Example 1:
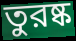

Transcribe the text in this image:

তুরষ্ক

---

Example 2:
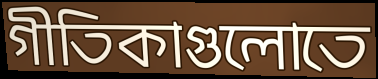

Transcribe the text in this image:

গীতিকাগুলোতে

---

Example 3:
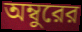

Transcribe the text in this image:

অম্বুরের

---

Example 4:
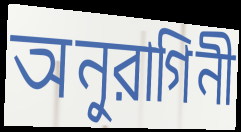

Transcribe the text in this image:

অনুরাগিনী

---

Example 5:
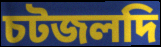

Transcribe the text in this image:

চটজলদি